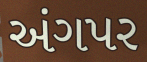
અંગપર